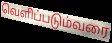
வெளிப்படும்வரை